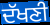
ਦੱਖਣੀ